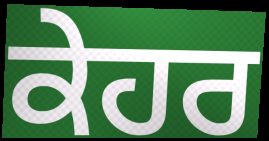
ਕੇਹਰ